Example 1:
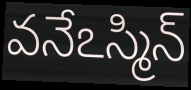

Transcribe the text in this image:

వనేఽస్మిన్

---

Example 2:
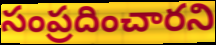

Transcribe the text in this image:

సంప్రదించారని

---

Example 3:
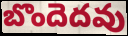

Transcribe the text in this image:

బొందెదవు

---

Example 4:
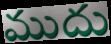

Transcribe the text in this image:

ముదు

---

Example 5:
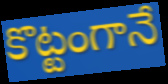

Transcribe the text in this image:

కొట్టంగానే